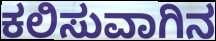
ಕಲಿಸುವಾಗಿನ